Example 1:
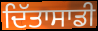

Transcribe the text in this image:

ਦਿੱਤਾਸਾਡੀ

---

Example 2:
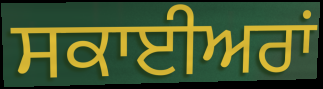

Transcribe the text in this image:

ਸਕਾਈਅਰਾਂ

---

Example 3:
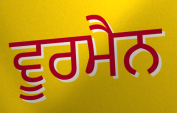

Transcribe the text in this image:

ਵੂਰਮੈਨ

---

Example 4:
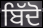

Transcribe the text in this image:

ਬਿੱਦੋ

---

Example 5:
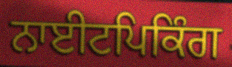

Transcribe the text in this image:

ਨਾਈਟਪਿਕਿੰਗ